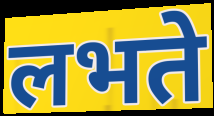
लभते